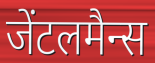
जेंटलमैन्स